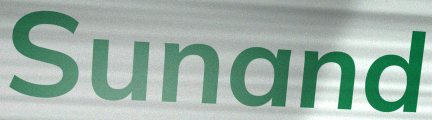
Sunand